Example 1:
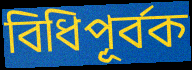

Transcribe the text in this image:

বিধিপূর্বক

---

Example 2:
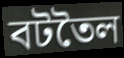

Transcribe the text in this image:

বটতৈল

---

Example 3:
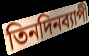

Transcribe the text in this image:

তিনদিনব্যাপী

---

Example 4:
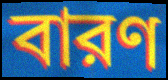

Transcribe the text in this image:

বারণ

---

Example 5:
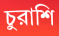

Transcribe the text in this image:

চুরাশি